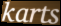
karts